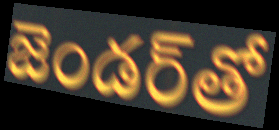
జెండర్‌తో